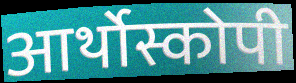
आर्थोस्कोपी